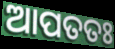
ଆପତତଃ